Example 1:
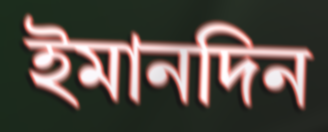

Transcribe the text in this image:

ইমানদিন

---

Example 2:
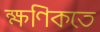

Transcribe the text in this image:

ক্ষণিকতে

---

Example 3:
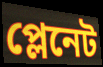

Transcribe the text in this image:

প্লেনেট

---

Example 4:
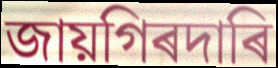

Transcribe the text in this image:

জায়গিৰদাৰি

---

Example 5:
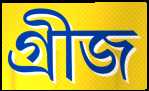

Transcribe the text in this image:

গ্ৰীজ